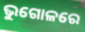
ଭୁଗୋଳରେ